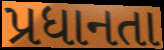
પ્રધાનતા